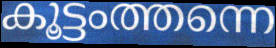
കൂട്ടംത്തന്നെ